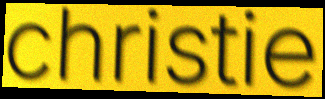
christie